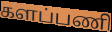
களப்பணி